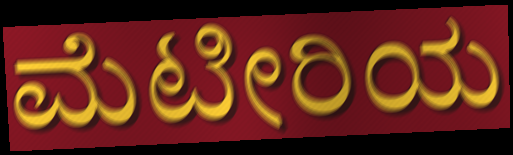
ಮೆಟೀರಿಯ